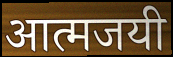
आत्मजयी